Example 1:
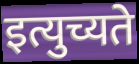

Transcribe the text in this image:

इत्युच्यते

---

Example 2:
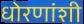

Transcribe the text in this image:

धोरणांशी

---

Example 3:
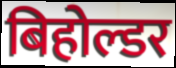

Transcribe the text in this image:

बिहोल्डर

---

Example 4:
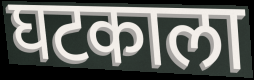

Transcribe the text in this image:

घटकाला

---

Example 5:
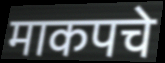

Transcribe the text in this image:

माकपचे